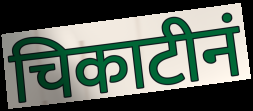
चिकाटीनं